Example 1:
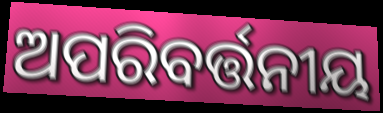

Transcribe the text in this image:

ଅପରିବର୍ତ୍ତନୀୟ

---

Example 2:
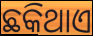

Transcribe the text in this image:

ଛକିଥାଏ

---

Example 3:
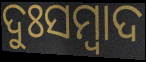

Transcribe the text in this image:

ଦୁଃସମ୍ବାଦ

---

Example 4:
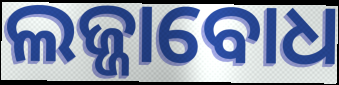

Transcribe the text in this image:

ଲଜ୍ଜାବୋଧ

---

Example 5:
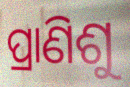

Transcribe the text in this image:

ପ୍ରାଣିଶୁ